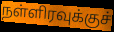
நள்ளிரவுக்குச்